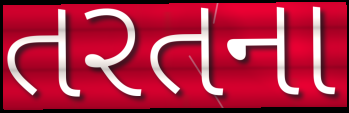
તરતના